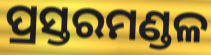
ପ୍ରସ୍ତରମଣ୍ଡଳ